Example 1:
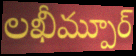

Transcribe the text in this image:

లఖీమ్పూర్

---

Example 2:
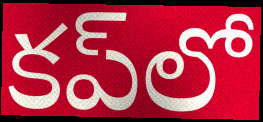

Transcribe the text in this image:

కప్‌లో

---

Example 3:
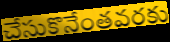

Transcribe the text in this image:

చేసుకొనేంతవరకు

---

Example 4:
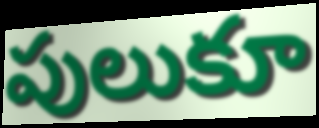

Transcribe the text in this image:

పులుకూ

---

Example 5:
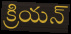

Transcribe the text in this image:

క్రియన్